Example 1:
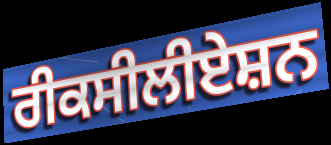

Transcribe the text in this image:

ਰੀਕਸੀਲੀਏਸ਼ਨ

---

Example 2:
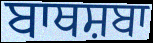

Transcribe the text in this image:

ਬਾਥਸ਼ਬਾ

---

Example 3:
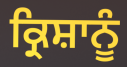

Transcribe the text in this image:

ਕ੍ਰਿਸ਼ਾਨੂੰ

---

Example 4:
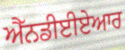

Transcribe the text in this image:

ਐੱਨਡੀਈਏਆਰ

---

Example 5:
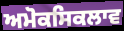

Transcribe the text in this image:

ਅਮੋਕਸਿਕਲਾਵ